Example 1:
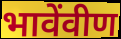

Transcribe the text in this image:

भावेंवीण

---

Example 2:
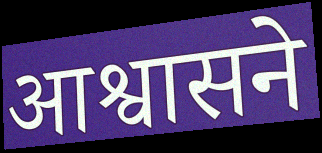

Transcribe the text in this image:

आश्वासने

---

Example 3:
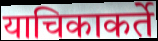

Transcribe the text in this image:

याचिकाकर्ते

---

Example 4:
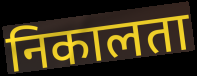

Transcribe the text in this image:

निकालता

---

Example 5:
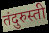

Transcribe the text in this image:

तंदुरुस्ती